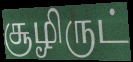
சூழிருட்